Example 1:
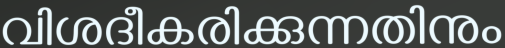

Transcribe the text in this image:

വിശദീകരിക്കുന്നതിനും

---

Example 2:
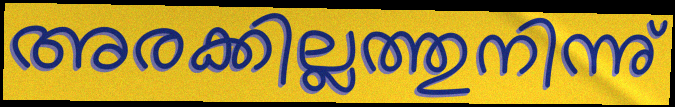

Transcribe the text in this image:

അരക്കില്ലത്തുനിന്നു്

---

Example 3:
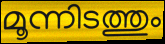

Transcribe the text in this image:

മൂന്നിടത്തും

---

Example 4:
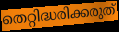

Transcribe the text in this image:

തെറ്റിദ്ധരിക്കരുത്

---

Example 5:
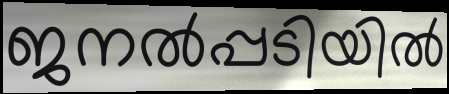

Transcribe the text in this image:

ജനൽപ്പടിയിൽ